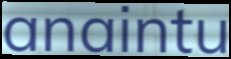
anaintu